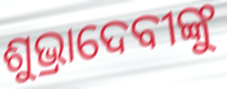
ଶୁଭ୍ରାଦେବୀଙ୍କୁ